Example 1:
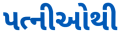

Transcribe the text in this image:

પત્નીઓથી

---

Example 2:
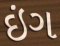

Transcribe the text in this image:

ઇંગ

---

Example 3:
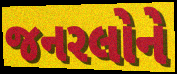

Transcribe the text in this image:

જનરલોને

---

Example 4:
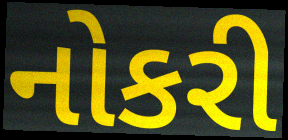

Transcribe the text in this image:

નોકરી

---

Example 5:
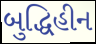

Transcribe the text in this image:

બુદ્ધિહીન